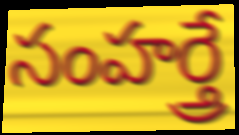
సంహర్త్రే